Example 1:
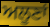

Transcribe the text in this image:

ਅਲੂਣਾਂ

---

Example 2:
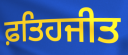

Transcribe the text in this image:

ਫ਼ਤਿਹਜੀਤ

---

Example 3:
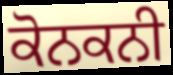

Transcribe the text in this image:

ਕੋਨਕਨੀ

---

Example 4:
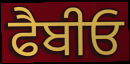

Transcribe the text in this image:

ਫੈਬੀਓ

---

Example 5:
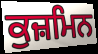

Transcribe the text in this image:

ਕੁਜ਼ਮਿਨ